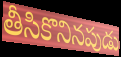
తీసికొనినపుడు